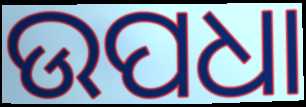
ଉପଧା